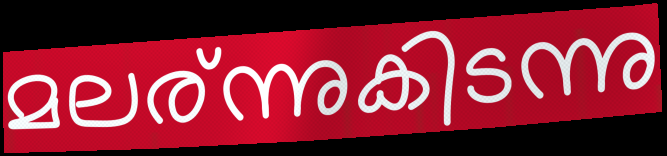
മലര്ന്നുകിടന്നു